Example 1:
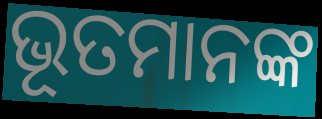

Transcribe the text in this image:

ଭୂତମାନଙ୍କ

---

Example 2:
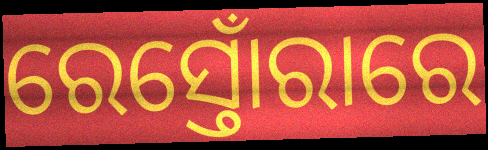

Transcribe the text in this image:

ରେସ୍ତୋଁରାରେ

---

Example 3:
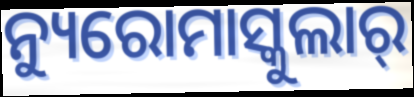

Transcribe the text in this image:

ନ୍ୟୁରୋମାସ୍କୁଲାର୍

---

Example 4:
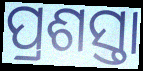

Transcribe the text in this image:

ପ୍ରଶସ୍ତା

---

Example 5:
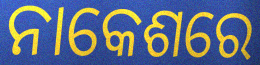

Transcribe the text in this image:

ନାକେଶରେ